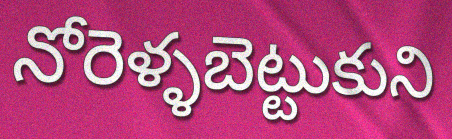
నోరెళ్ళబెట్టుకుని